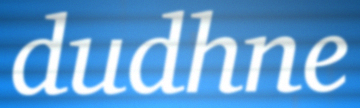
dudhne